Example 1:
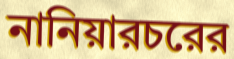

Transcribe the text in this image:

নানিয়ারচরের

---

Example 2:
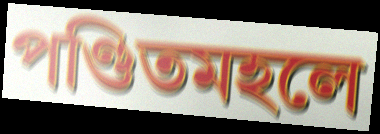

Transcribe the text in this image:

পণ্ডিতমহলে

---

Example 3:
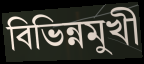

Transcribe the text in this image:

বিভিন্নমুখী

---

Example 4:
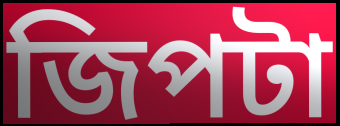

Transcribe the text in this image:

জিপটা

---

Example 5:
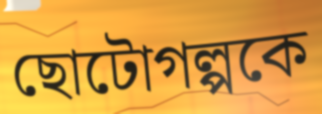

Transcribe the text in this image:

ছোটোগল্পকে